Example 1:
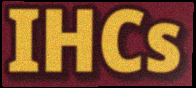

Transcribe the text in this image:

IHCs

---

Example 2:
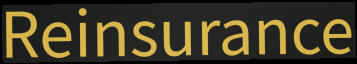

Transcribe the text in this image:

Reinsurance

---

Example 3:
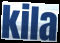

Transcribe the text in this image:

kila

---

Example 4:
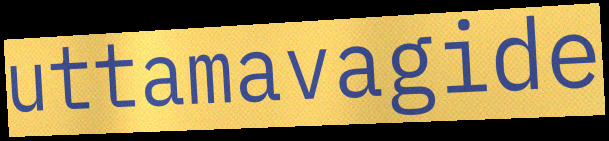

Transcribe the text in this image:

uttamavagide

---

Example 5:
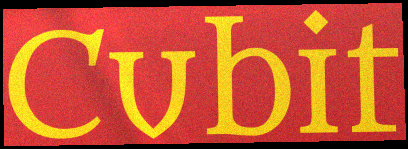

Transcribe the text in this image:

Cubit